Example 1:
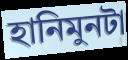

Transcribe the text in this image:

হানিমুনটা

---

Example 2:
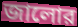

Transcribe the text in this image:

জালোর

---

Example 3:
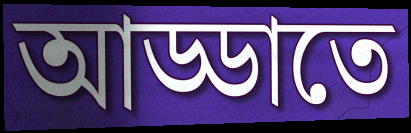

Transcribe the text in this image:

আড্ডাতে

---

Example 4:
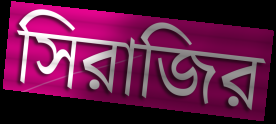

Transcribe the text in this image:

সিরাজির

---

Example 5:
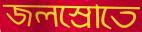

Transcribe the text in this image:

জলস্রোতে